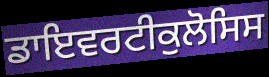
ਡਾਇਵਰਟੀਕੁਲੋਸਿਸ